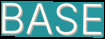
BASE